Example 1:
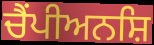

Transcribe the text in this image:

ਚੈਂਪੀਅਨਸ਼ਿ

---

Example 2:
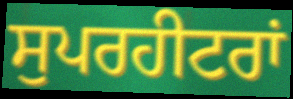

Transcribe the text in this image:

ਸੁਪਰਹੀਟਰਾਂ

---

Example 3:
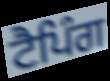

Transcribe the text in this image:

ਟੈਪਿੰਗ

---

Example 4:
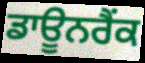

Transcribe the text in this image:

ਡਾਊਨਰੈਂਕ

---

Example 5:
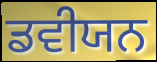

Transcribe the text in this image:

ਡਵੀਯਨ